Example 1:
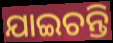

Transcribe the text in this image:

ଯାଇଚନ୍ତି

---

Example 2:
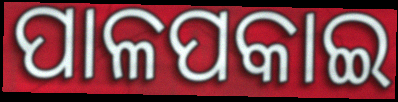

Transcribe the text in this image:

ପାଳପକାଇ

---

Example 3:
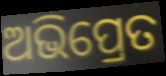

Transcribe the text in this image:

ଅଭିପ୍ରେତ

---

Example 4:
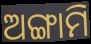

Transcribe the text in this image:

ଅଙ୍ଗାମି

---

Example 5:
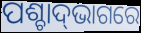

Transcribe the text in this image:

ପଶ୍ଚାଦ୍‌ଭାଗରେ